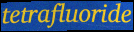
tetrafluoride